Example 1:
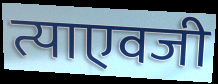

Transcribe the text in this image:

त्याएवजी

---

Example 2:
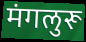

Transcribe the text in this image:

मंगलुरू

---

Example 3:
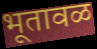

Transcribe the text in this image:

भूतावळ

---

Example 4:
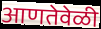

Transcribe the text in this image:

आणतेवेळी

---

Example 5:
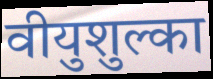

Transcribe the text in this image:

वीयुशुल्का